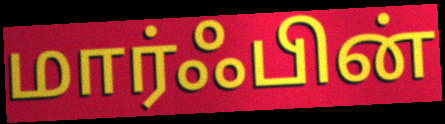
மார்ஃபின்